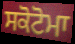
ਸਕੋਟੋਮਾ